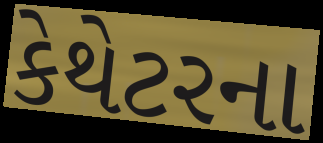
કેથેટરના